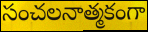
సంచలనాత్మకంగా